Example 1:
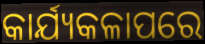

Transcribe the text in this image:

କାର୍ଯ୍ୟକଳାପରେ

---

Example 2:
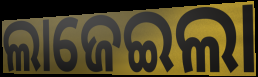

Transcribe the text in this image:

ଲାଜେଇଲା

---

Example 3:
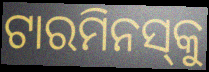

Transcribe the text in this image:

ଟାରମିନସ୍‌କୁ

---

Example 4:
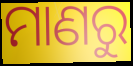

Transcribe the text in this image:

ମାଣରୁ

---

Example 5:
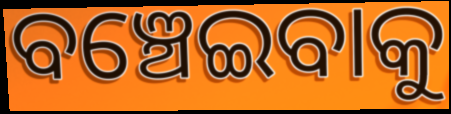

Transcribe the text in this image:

ବଞ୍ଚେଇବାକୁ